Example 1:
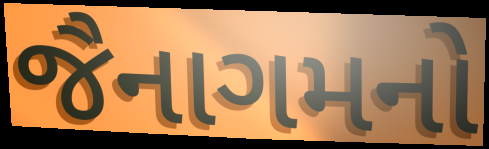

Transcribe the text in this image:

જૈનાગમનો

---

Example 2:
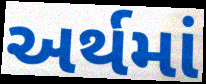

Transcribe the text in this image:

અર્થમાં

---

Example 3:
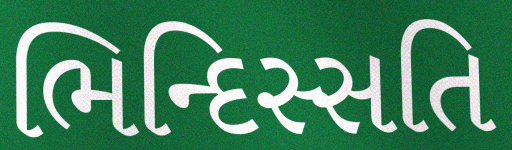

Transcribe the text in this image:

ભિન્દિસ્સતિ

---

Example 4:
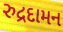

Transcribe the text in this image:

રુદ્રદામન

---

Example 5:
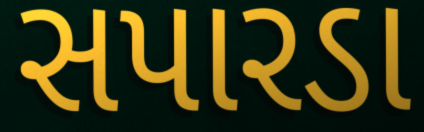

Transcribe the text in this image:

સપારડા